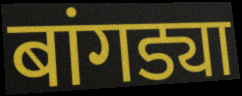
बांगड्या